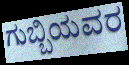
ಗುಬ್ಬಿಯವರ